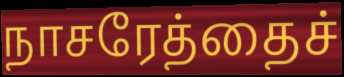
நாசரேத்தைச்